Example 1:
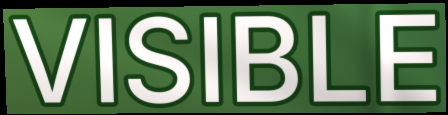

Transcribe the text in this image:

VISIBLE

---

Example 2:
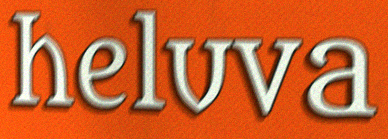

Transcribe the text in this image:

heluva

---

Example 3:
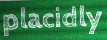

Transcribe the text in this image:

placidly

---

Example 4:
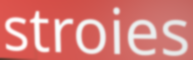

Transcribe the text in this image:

stroies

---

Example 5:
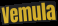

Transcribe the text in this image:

Vemula